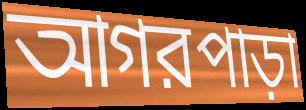
আগরপাড়া